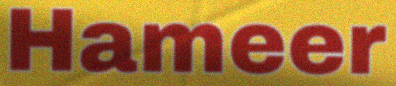
Hameer